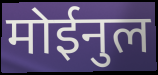
मोईनुल